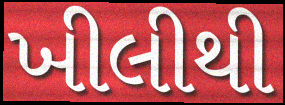
ખીલીથી